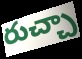
రుచ్చా